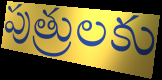
పుత్రులకు